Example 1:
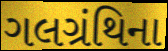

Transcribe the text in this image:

ગલગ્રંથિના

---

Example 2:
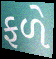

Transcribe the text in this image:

ફળે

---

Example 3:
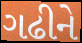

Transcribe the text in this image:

ગઢીને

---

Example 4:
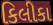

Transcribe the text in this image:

કિલીકા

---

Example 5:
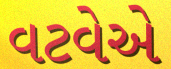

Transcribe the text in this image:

વટવેએ